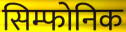
सिम्फोनिक